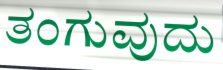
ತಂಗುವುದು